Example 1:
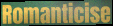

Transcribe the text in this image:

Romanticise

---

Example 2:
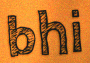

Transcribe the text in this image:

bhi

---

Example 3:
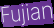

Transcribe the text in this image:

Fujian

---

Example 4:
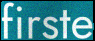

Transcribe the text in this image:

firste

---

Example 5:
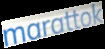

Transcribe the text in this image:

marattok